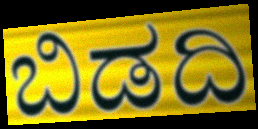
ಬಿಡದಿ